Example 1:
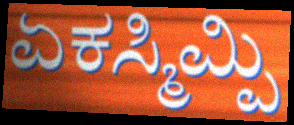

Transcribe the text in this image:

ಏಕಸ್ಮಿಮ್ಪಿ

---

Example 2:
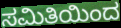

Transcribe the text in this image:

ಸಮಿತಿಯಿಂದ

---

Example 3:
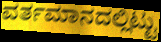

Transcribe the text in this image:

ವರ್ತಮಾನದಲ್ಲಿಟ್ಟು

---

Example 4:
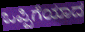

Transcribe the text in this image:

ಒಪ್ಪಿಗೆಯಾದ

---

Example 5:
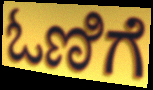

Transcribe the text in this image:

ಓಣಿಗೆ